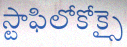
స్టాఫిలోకోక్సై